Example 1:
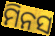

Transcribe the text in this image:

ମିନସ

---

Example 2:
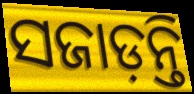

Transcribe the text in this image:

ସଜାଡ଼ନ୍ତି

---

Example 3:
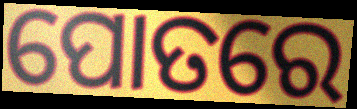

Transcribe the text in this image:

ପୋତରେ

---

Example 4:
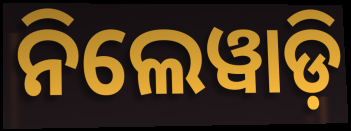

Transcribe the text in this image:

ନିଲେୱାଡ଼ି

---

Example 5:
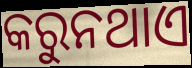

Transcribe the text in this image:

କରୁନଥାଏ